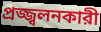
প্রজ্জ্বলনকারী